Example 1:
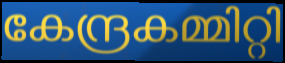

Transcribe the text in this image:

കേന്ദ്രകമ്മിറ്റി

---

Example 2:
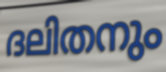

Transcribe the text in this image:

ദലിതനും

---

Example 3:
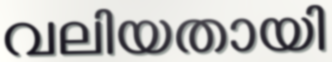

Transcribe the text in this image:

വലിയതായി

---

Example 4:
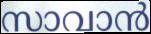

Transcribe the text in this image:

സാവാൻ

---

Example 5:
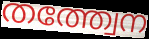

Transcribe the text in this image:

തത്ത്വേന